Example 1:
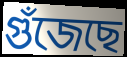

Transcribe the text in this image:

গুঁজেছে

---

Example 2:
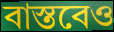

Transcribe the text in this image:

বাস্তবেও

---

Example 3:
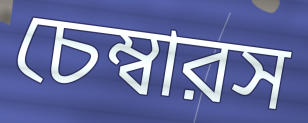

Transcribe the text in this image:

চেম্বারস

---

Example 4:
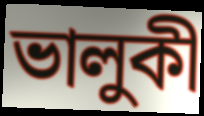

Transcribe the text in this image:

ভালুকী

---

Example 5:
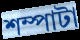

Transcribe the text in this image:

শম্পাটা